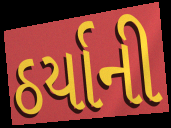
ઠર્યાની